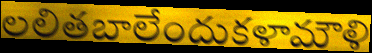
లలితబాలేందుకళామౌళి